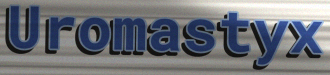
Uromastyx